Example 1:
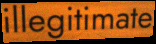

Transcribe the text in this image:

illegitimate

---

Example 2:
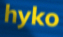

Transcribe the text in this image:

hyko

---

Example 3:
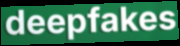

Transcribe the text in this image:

deepfakes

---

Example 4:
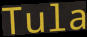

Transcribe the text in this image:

Tula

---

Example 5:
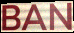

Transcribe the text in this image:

BAN